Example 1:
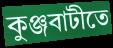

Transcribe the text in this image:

কুঞ্জবাটীতে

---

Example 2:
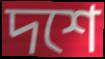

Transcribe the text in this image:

দশে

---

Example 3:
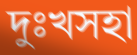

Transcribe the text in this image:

দুঃখসহা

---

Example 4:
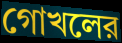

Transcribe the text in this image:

গোখলের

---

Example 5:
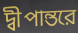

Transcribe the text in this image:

দ্বীপান্তরে